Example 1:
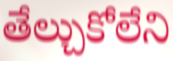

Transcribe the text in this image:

తేల్చుకోలేని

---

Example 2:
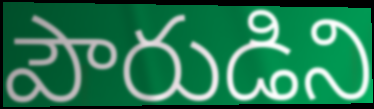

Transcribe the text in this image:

పౌరుడిని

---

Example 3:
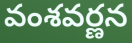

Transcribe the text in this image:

వంశవర్ణన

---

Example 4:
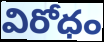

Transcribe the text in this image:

విరోధం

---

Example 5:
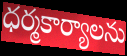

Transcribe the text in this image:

ధర్మకార్యాలను